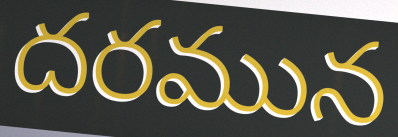
దరమున